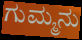
ಗುಮ್ಮನು